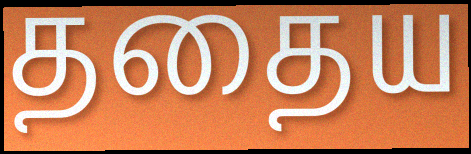
ததைய